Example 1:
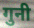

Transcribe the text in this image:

गुनी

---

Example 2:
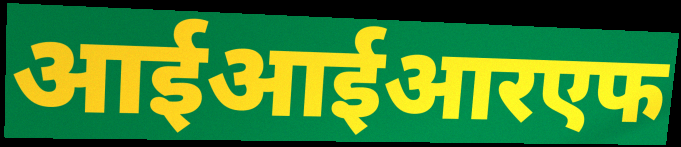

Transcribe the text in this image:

आईआईआरएफ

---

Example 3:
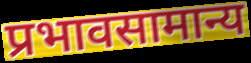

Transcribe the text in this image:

प्रभावसामान्य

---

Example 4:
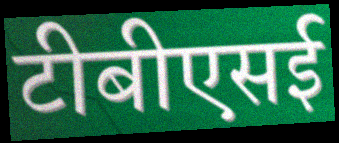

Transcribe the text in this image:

टीबीएसई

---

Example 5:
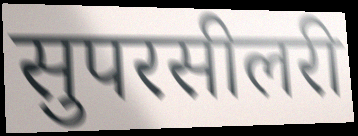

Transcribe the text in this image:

सुपरसीलरी